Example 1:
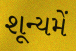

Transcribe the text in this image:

શૂન્યમેં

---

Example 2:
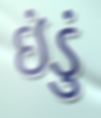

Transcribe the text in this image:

ઇંડું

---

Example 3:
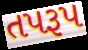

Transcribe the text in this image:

તપરૂપ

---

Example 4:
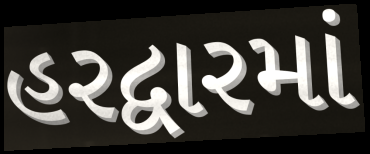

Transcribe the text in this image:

હરદ્વારમાં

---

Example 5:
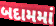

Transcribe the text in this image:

બદામમાં